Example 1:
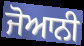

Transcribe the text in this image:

ਜੋਆਨੀ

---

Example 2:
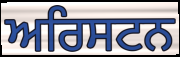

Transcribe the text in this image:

ਅਰਿਸਟਨ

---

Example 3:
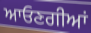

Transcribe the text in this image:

ਆਓਣਗੀਆਂ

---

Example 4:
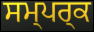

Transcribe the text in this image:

ਸਮ੍ਪਰ੍ਕ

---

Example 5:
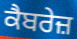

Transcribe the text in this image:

ਕੈਬਰੇਜ਼